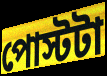
পোস্টটা